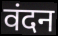
वंदन